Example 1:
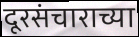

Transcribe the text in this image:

दूरसंचाराच्या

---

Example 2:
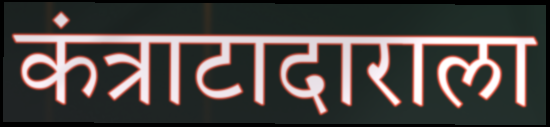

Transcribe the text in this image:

कंत्राटादाराला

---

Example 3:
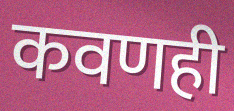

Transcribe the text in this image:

कवणही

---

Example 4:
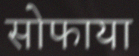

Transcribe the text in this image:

सोफाया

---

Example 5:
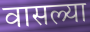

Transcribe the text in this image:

वासल्या